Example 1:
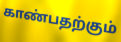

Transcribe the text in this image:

காண்பதற்கும்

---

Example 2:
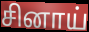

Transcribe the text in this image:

சினாய்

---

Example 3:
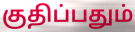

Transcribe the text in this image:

குதிப்பதும்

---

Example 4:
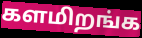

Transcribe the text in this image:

களமிறங்க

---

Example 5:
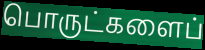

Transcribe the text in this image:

பொருட்களைப்